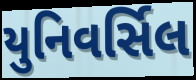
યુનિવર્સિલ